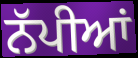
ਨੱਪੀਆਂ